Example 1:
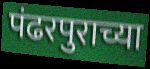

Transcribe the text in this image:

पंढरपुराच्या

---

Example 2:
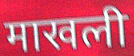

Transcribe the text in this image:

माखली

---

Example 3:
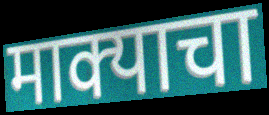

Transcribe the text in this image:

माक्याचा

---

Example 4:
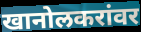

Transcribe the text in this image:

खानोलकरांवर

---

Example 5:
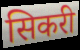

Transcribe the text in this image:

सिकरी